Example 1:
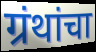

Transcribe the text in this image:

ग्रंथांचा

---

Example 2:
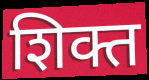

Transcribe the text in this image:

शिक्त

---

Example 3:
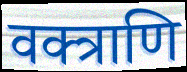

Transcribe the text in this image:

वक्त्राणि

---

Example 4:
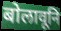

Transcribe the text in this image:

बोलावूनि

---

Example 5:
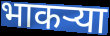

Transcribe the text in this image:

भाकर्‍या